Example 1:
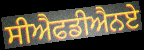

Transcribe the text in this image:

ਸੀਐਫਡੀਐਨਏ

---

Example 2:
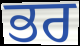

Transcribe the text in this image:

ਭਰ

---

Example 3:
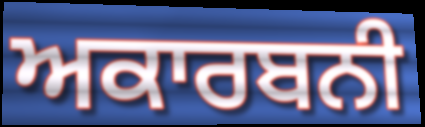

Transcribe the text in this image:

ਅਕਾਰਬਨੀ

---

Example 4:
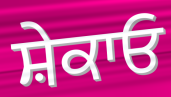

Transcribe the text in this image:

ਸ਼ੇਕਾਓ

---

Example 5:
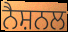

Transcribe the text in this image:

ਨੈਸ਼ਨਲ